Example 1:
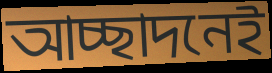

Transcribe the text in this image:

আচ্ছাদনেই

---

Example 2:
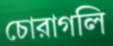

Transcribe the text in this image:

চোরাগলি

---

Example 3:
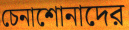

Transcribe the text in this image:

চেনাশোনাদের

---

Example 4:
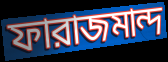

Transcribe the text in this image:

ফারাজমান্দ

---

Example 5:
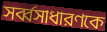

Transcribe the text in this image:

সর্ব্বসাধারণকে